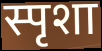
स्पृशा